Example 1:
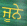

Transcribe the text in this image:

ਜੂਨੇ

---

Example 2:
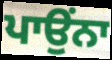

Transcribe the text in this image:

ਪਾਉਂਨਾ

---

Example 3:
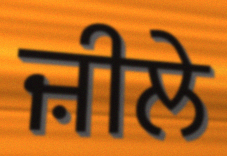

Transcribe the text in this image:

ਜ਼ੀਲੇ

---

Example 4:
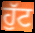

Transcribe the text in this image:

ਹੁੱਟ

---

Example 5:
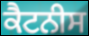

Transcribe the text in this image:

ਕੈਟਨੀਸ